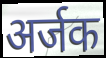
अर्जक